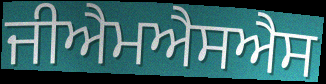
ਜੀਐਮਐਸਐਸ